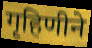
गृहिणीने